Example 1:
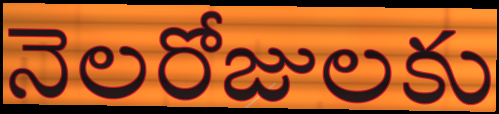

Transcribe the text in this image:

నెలరోజులకు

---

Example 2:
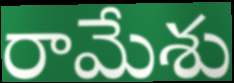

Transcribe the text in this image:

రామేశు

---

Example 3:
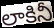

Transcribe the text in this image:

లాకినీ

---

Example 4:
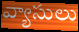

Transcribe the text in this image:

వ్యాసులు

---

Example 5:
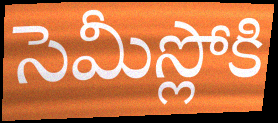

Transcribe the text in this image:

సెమీస్లోకి